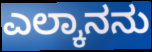
ಎಲ್ಕಾನನು